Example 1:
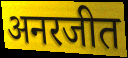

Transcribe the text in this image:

अनरजीत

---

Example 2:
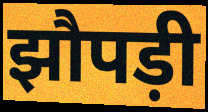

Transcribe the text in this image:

झौपड़ी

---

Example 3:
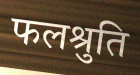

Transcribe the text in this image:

फलश्रुति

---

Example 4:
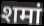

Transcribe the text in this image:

शमां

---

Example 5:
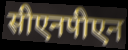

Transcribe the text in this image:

सीएनपीएन